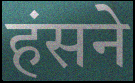
हंसने